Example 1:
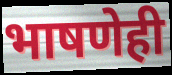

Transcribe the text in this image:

भाषणेही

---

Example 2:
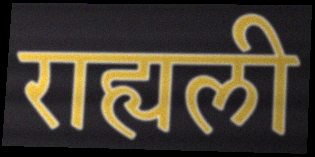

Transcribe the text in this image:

राह्यली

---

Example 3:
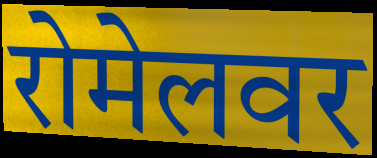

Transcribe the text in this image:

रोमेलवर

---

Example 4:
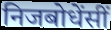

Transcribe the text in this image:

निजबोधेंसीं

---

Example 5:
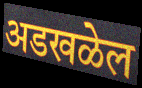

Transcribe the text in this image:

अडखळेल